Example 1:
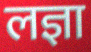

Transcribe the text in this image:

लज्ञा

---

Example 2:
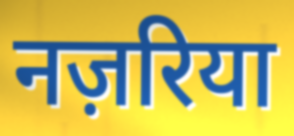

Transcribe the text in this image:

नज़रिया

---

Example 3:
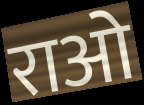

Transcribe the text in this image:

राओ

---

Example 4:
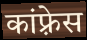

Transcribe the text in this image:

कांफ़्रेस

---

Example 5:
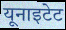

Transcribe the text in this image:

यूनाइटेट